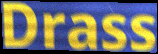
Drass